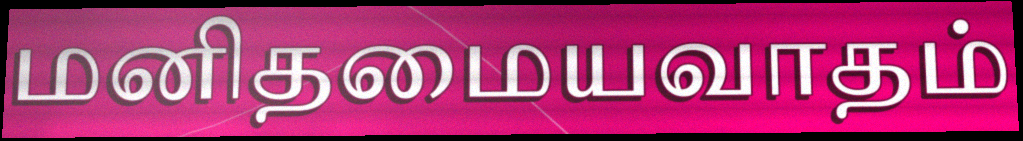
மனிதமையவாதம்